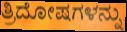
ತ್ರಿದೋಷಗಳನ್ನು